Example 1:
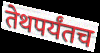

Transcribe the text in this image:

तेथपर्यंतच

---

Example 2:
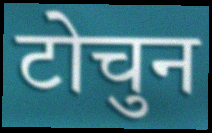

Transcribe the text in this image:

टोचुन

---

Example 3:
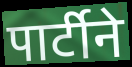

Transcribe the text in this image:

पार्टीने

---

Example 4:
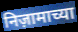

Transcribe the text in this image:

निज़ामाच्या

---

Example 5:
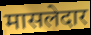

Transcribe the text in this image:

मासलेदार